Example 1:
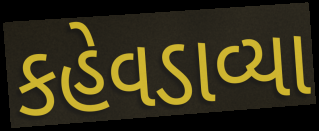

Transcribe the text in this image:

કહેવડાવ્યા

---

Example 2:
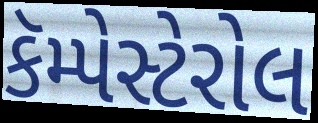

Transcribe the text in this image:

કૅમ્પેસ્ટેરોલ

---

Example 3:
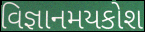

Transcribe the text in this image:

વિજ્ઞાનમયકોશ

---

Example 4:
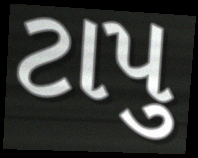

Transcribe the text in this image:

ટાપુ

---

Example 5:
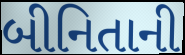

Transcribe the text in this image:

બીનિતાની